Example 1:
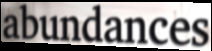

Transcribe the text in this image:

abundances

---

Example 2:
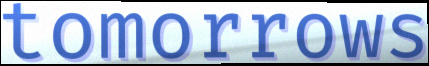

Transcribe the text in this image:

tomorrows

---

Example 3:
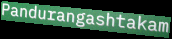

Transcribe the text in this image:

Pandurangashtakam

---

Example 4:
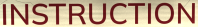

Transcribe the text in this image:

INSTRUCTION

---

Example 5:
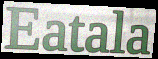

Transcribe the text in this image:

Eatala